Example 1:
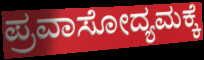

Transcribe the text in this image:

ಪ್ರವಾಸೋದ್ಯಮಕ್ಕೆ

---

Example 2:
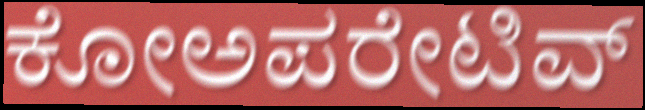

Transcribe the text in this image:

ಕೋಅಪರೇಟಿವ್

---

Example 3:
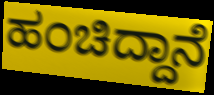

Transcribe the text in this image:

ಹಂಚಿದ್ದಾನೆ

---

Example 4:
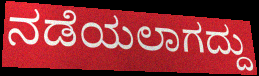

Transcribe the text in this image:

ನಡೆಯಲಾಗದ್ದು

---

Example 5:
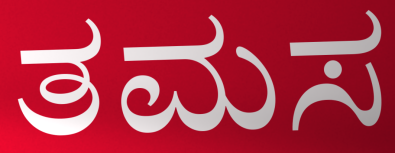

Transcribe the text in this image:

ತಮಸ